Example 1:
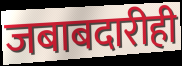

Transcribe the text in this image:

जबाबदारीही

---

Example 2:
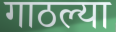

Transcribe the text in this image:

गाठल्या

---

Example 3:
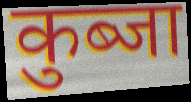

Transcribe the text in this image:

कुब्जा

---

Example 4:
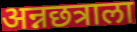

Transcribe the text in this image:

अन्नछत्राला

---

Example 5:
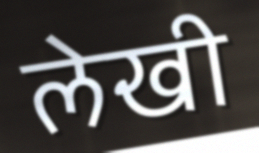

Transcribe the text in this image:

लेखी